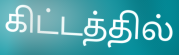
கிட்டத்தில்